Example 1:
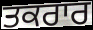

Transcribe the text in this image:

ਤਕਰਾਰ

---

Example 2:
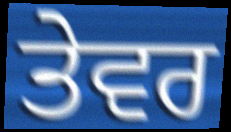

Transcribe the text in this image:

ਤੇਵਰ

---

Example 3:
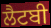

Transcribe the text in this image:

ਲੈਟਬੀ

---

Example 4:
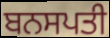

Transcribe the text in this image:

ਬਨਸਪਤੀ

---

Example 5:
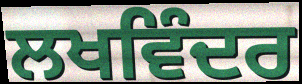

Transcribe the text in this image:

ਲਖਵਿੰਦਰ